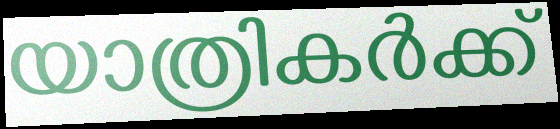
യാത്രികർക്ക്